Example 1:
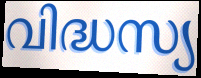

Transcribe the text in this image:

വിദ്ധസ്യ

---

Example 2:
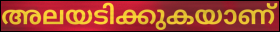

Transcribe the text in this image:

അലയടിക്കുകയാണ്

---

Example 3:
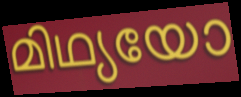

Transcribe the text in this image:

മിഥ്യയോ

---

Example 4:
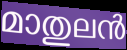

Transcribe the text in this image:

മാതുലൻ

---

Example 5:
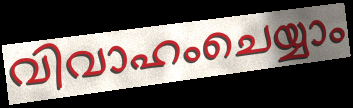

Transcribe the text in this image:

വിവാഹംചെയ്യാം